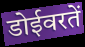
डोईवरतें